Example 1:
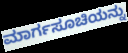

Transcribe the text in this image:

ಮಾರ್ಗಸೂಚಿಯನ್ನು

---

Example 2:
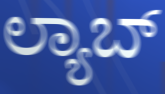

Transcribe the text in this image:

ಲ್ಯಾಬ್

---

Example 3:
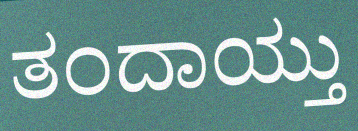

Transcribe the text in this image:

ತಂದಾಯ್ತು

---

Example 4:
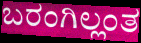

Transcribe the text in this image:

ಬರಂಗಿಲ್ಲಂತ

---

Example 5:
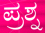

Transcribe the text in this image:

ಪ್ರಶ್ನ